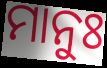
ମାନୁଃ